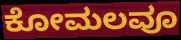
ಕೋಮಲವೂ